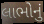
લાભોનું